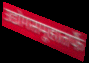
उद्योगसमूहातर्फे